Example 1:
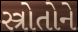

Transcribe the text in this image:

સ્ત્રોતોને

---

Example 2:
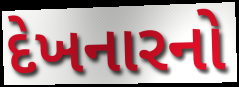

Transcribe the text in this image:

દેખનારનો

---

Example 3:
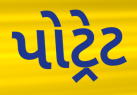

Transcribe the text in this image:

પોટ્રેટ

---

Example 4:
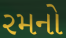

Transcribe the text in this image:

રમનો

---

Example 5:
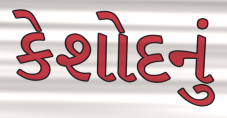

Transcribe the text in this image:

કેશોદનું